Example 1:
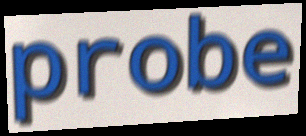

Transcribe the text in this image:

probe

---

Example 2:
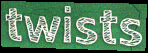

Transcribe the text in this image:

twists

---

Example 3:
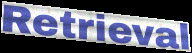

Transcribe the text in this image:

Retrieval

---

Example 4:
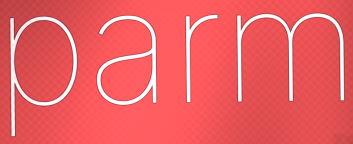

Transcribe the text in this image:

parm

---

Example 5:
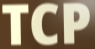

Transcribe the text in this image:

TCP